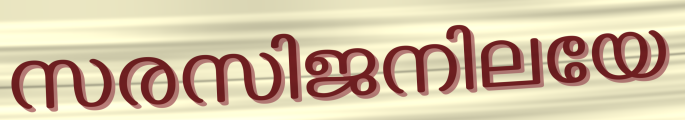
സരസിജനിലയേ